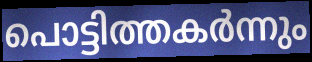
പൊട്ടിത്തകർന്നും